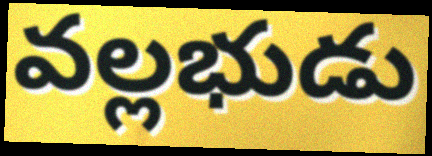
వల్లభుడు